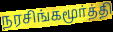
நரசிங்கமூர்த்தி